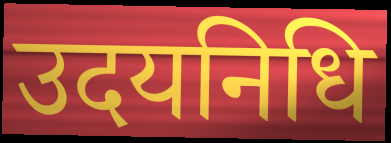
उदयनिधि